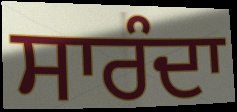
ਸਾਰੰਦਾ